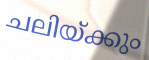
ചലിയ്ക്കും